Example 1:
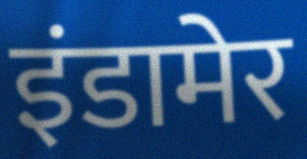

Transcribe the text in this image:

इंडामेर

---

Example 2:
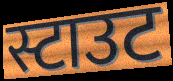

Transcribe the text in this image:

स्टाउट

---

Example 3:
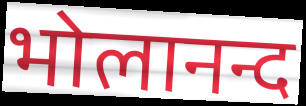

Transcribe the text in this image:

भोलानन्द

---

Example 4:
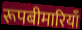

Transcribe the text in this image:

रूपबीमारियाँ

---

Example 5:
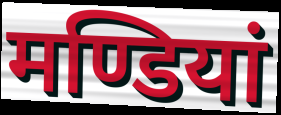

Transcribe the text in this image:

मण्डियां